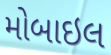
મોબાઇલ